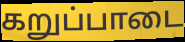
கறுப்பாடை